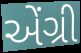
એંગ્રી